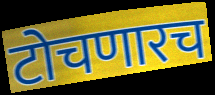
टोचणारच